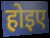
होइए